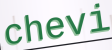
chevi